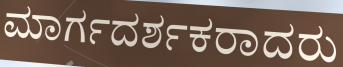
ಮಾರ್ಗದರ್ಶಕರಾದರು